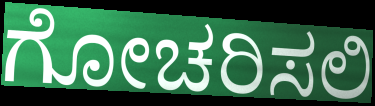
ಗೋಚರಿಸಲಿ